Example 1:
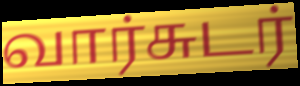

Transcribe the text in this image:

வார்சுடர்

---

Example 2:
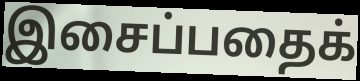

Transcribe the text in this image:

இசைப்பதைக்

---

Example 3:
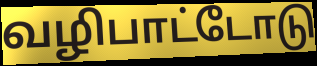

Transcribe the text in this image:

வழிபாட்டோடு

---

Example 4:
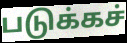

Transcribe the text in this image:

படுக்கச்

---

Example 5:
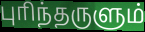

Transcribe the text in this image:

புரிந்தருளும்